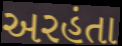
અરહંતા